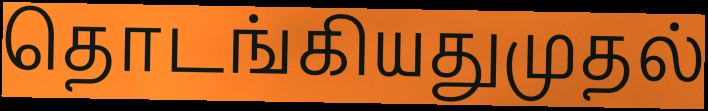
தொடங்கியதுமுதல்